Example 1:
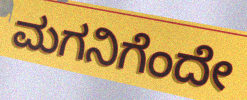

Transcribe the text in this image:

ಮಗನಿಗೆಂದೇ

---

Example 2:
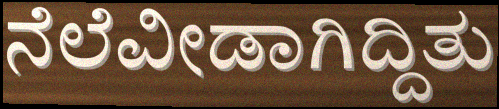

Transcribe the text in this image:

ನೆಲೆವೀಡಾಗಿದ್ದಿತು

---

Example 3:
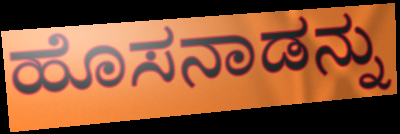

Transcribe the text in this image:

ಹೊಸನಾಡನ್ನು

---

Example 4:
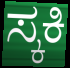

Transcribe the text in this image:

ಸ್ಕಕಿ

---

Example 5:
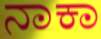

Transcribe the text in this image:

ನಾಕಾ